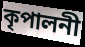
কৃপালনী